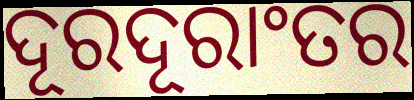
ଦୂରଦୂରାଂତର